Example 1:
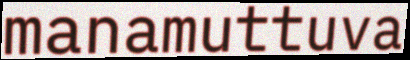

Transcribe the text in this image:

manamuttuva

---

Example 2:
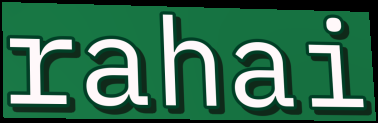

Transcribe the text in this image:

rahai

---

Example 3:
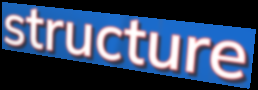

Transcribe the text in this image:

structure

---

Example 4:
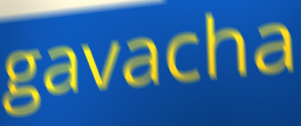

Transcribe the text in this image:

gavacha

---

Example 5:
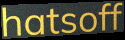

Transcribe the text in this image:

hatsoff